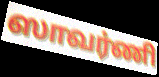
ஸாவர்ணி